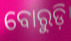
ବୋରୁଡ଼ି